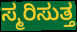
ಸ್ಮರಿಸುತ್ತ